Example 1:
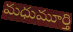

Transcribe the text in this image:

మధుమూర్తి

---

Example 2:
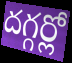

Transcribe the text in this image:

దగ్గర్లో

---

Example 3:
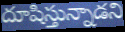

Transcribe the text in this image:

దూషిస్తున్నాడని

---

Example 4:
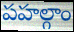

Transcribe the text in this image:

పహల్గాం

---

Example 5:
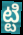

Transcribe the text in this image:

ట్టి